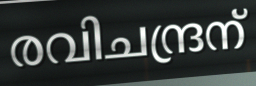
രവിചന്ദ്രന്